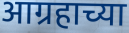
आग्रहाच्या